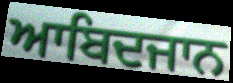
ਆਬਿਦਜਾਨ